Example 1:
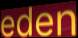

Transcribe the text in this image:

eden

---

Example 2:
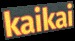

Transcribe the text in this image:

kaikai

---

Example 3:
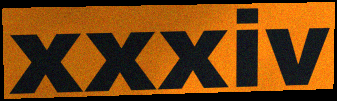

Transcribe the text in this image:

xxxiv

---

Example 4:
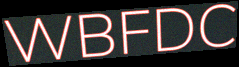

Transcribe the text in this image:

WBFDC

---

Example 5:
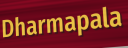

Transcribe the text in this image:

Dharmapala